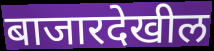
बाजारदेखील